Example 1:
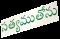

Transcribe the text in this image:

సత్యముతోను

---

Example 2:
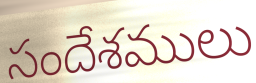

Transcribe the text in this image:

సందేశములు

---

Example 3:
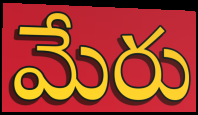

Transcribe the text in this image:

మేరు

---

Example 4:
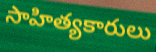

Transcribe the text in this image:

సాహిత్యకారులు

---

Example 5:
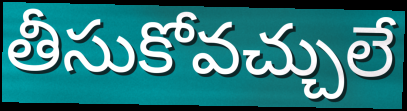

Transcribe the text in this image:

తీసుకోవచ్చులే